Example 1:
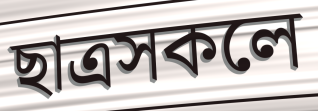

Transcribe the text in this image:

ছাত্ৰসকলে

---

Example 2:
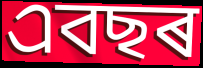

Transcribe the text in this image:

এবছৰ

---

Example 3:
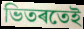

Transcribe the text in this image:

ভিতৰতেই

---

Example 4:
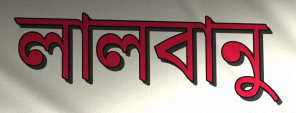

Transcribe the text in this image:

লালবানু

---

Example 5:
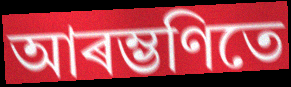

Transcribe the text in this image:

আৰম্ভণিতে